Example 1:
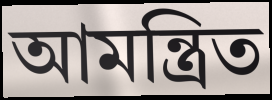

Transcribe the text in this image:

আমন্ত্ৰিত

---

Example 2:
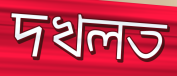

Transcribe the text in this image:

দখলত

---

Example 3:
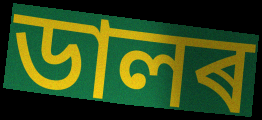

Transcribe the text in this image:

ডালৰ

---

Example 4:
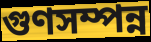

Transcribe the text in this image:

গুণসম্পন্ন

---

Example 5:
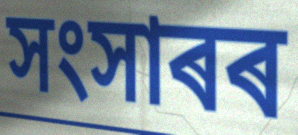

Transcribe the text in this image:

সংসাৰৰ